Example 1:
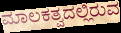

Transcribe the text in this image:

ಮಾಲಕತ್ವದಲ್ಲಿರುವ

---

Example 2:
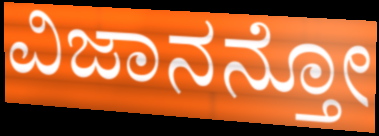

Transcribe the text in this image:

ವಿಜಾನನ್ತೋ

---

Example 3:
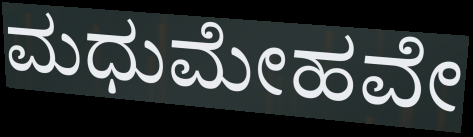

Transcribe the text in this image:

ಮಧುಮೇಹವೇ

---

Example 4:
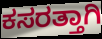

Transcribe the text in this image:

ಕಸರತ್ತಾಗಿ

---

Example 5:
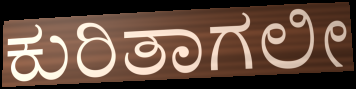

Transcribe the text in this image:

ಕುರಿತಾಗಲೀ